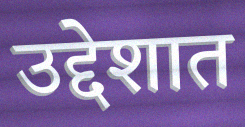
उद्देशात